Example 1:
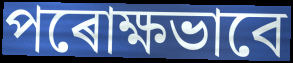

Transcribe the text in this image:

পৰোক্ষভাবে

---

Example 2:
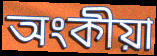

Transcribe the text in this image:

অংকীয়া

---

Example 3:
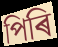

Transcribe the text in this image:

পিৰি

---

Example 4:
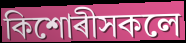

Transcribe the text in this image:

কিশোৰীসকলে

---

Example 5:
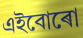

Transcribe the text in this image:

এইবোৰো